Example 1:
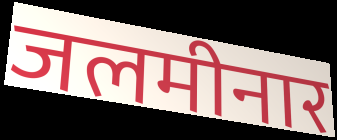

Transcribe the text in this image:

जलमीनार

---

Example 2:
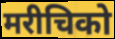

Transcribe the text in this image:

मरीचिको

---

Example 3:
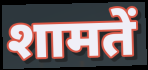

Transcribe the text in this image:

शामतें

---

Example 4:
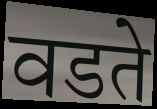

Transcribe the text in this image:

वडते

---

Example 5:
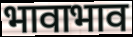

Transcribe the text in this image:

भावाभाव